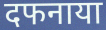
दफनाया